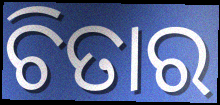
ଚିତାର